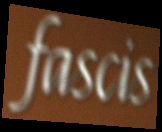
fascis